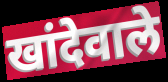
खांदेवाले